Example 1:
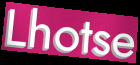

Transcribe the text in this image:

Lhotse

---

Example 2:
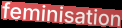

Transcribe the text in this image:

feminisation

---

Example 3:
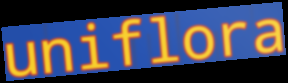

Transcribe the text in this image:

uniflora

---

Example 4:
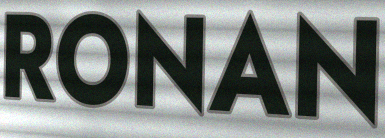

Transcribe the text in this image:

RONAN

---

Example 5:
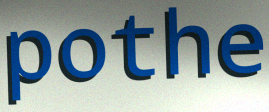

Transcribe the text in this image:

pothe